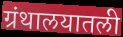
ग्रंथालयातली